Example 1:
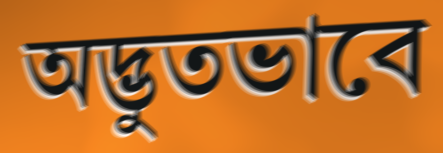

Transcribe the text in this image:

অদ্ভুতভাবে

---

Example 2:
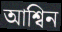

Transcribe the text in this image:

আশ্বিন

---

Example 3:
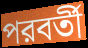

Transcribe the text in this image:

পরবর্তী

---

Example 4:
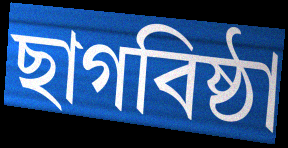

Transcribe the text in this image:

ছাগবিষ্ঠা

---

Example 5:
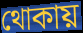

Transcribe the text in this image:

থোকায়